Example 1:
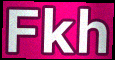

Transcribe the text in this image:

Fkh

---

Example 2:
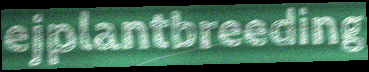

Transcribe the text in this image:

ejplantbreeding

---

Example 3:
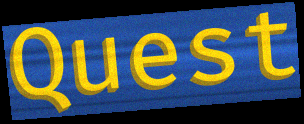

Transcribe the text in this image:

Quest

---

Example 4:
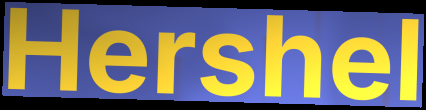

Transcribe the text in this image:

Hershel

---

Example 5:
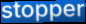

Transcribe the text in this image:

stopper